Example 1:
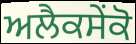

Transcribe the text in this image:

ਅਲੈਕਸੇਂਕੋ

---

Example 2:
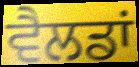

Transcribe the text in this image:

ਵੈਲਡਾਂ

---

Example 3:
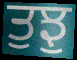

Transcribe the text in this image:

ਤੁਝੁ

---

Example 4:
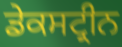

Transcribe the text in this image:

ਡੇਕਸਟ੍ਰੀਨ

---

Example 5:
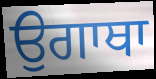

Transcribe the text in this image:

ਉਗਾਥਾ